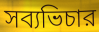
সব্যভিচার